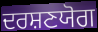
ਦਰਸ਼ਣਯੋਗ